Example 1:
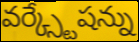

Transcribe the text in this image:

వర్క్స్టేషన్ను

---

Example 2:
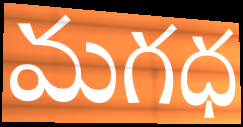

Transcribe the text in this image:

మగధ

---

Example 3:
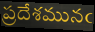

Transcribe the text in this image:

ప్రదేశమునఁ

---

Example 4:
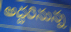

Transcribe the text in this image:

అద్దరినున్న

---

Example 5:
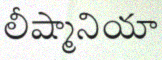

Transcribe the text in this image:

లీష్మానియా